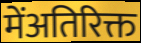
मेंअतिरिक्त